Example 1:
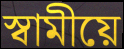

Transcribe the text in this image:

স্বামীয়ে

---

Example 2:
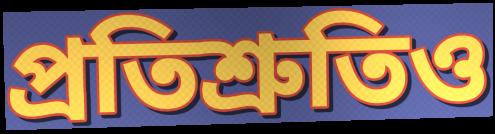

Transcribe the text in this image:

প্ৰতিশ্ৰুতিও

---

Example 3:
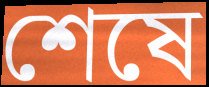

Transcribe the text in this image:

শেষে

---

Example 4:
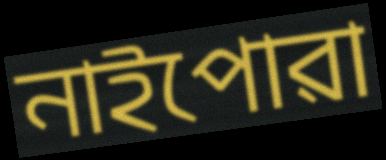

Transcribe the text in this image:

নাইপোৱা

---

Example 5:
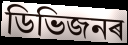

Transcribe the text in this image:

ডিভিজনৰ